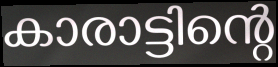
കാരാട്ടിന്റെ